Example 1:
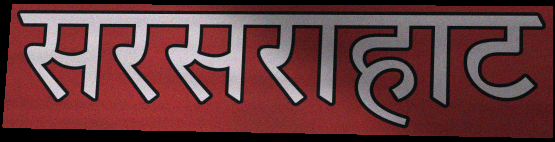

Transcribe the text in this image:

सरसराहाट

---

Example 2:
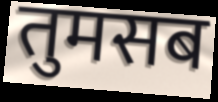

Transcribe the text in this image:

तुमसब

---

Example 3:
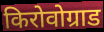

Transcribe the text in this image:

किरोवोग्राड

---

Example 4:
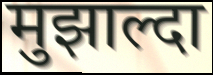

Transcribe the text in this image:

मुझाल्दा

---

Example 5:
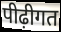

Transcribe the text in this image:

पीढ़ीगत